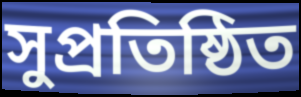
সুপ্ৰতিষ্ঠিত